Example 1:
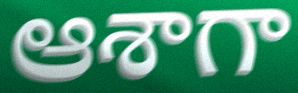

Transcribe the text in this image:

ఆశాగా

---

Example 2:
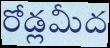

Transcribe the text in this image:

రోడ్లమీద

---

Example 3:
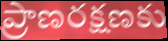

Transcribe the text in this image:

ప్రాణరక్షణకు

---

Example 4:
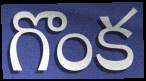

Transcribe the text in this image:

గొంక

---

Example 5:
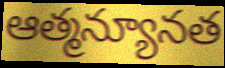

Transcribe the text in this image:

ఆత్మన్యూనత